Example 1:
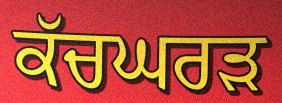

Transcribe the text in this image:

ਕੱਚਘਰੜ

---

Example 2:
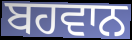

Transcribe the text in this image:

ਬਹਵਾਨ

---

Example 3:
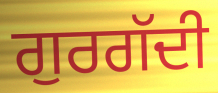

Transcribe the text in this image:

ਗੁਰਗੱਦੀ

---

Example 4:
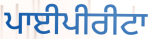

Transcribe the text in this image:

ਪਾਈਪੀਰੀਟਾ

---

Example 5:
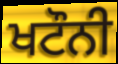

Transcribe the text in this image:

ਖਟੌਨੀ